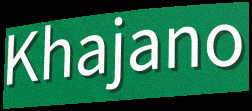
Khajano